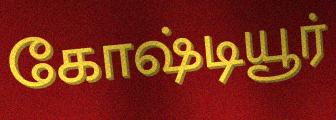
கோஷ்டியூர்